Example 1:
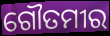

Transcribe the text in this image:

ଗୌତମୀର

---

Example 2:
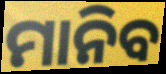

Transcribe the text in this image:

ମାନିବ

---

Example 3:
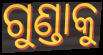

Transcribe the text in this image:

ଗୁଣ୍ଡାକୁ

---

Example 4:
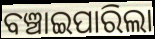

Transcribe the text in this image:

ବଞ୍ଚାଇପାରିଲା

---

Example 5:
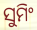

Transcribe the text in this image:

ସୁମିଂ